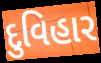
દુવિહાર